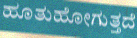
ಹೂತುಹೋಗುತ್ತದೆ